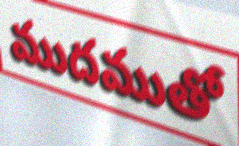
ముదముతో